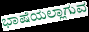
ಭಾಷೆಯಲ್ಲಾಗುವ